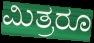
ಮಿತ್ರರೂ